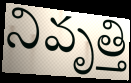
నివృత్తి